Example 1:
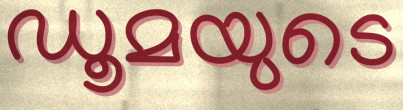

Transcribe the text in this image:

ഡൂമയുടെ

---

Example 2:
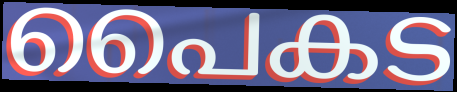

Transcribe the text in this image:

പൈകട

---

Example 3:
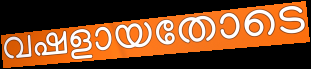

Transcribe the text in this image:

വഷളായതോടെ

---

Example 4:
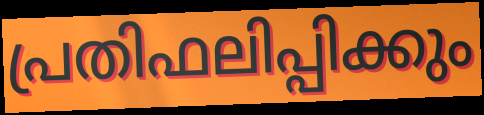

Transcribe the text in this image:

പ്രതിഫലിപ്പിക്കും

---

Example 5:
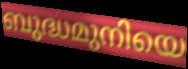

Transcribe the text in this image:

ബുദ്ധമുനിയെ